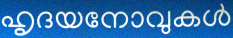
ഹൃദയനോവുകൾ